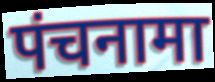
पंचनामा